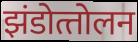
झंडोत्‍तोलन